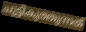
ചുട്ടികുത്തുന്നത്